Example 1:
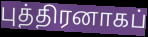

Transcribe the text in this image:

புத்திரனாகப்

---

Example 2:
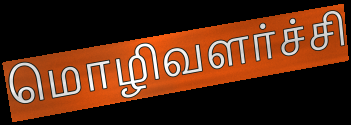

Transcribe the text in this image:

மொழிவளர்ச்சி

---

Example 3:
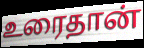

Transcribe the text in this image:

உரைதான்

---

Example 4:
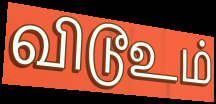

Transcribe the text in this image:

விடூஉம்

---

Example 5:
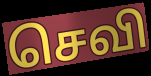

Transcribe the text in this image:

செவி